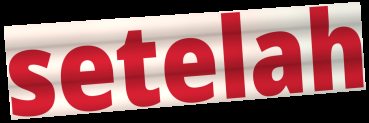
setelah